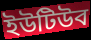
ইউটিউব